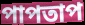
পাপতাপ